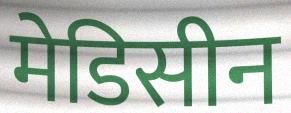
मेडिसीन